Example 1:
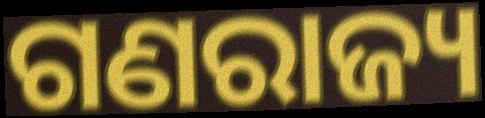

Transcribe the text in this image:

ଗଣରାଜ୍ୟ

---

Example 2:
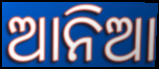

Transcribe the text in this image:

ଆନିଆ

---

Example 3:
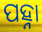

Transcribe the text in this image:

ପହ୍ନା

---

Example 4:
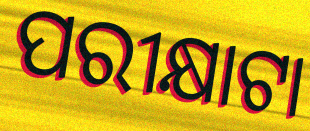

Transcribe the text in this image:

ପରୀକ୍ଷାଟା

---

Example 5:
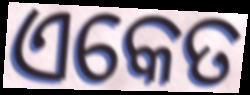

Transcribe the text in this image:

ଏକେତ